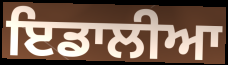
ਇਡਾਲੀਆ